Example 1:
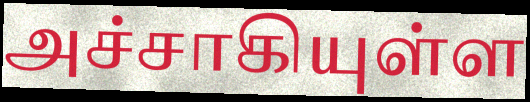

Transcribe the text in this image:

அச்சாகியுள்ள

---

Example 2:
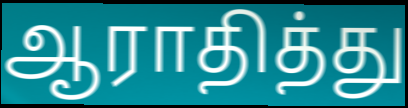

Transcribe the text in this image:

ஆராதித்து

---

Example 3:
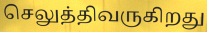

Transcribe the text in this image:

செலுத்திவருகிறது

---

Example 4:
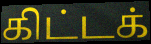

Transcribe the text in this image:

கிட்டக்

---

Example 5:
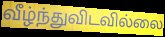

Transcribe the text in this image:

வீழ்ந்துவிடவில்லை